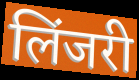
लिंजरी